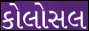
કોલોસલ